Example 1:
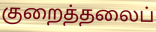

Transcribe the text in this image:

குறைத்தலைப்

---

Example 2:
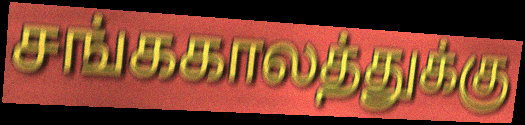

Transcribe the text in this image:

சங்ககாலத்துக்கு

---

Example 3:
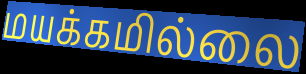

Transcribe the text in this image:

மயக்கமில்லை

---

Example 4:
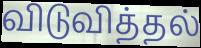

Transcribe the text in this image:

விடுவித்தல்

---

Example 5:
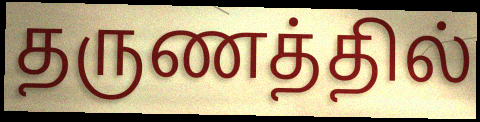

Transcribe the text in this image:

தருணத்தில்